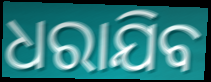
ଧରାଯିବ